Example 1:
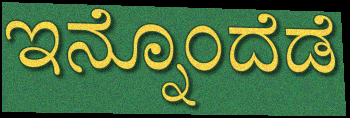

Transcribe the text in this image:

ಇನ್ನೊಂದೆಡೆ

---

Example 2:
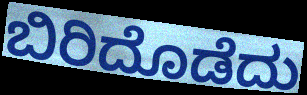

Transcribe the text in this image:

ಬಿರಿದೊಡೆದು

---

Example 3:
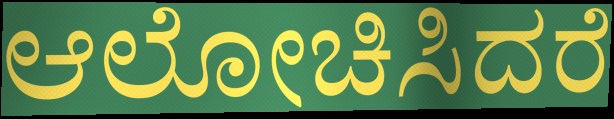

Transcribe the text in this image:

ಆಲೋಚಿಸಿದರೆ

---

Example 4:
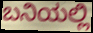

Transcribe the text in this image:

ಬನಿಯಲ್ಲಿ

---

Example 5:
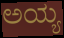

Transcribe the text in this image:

ಅಯ್ಯ